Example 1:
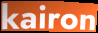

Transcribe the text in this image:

kairon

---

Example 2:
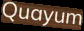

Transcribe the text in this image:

Quayum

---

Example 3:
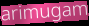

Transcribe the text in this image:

arimugam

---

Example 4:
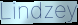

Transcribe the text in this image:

Lindzey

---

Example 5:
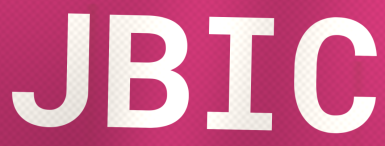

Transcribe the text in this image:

JBIC